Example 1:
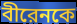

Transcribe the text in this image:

বীরেনকে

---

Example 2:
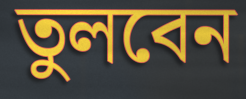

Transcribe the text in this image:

তুলবেন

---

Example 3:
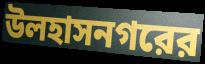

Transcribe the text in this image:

উলহাসনগরের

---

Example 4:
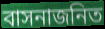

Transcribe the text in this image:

বাসনাজনিত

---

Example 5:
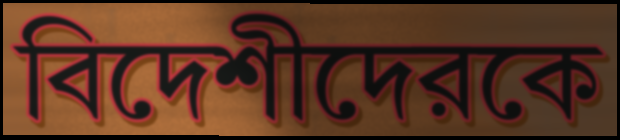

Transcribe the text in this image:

বিদেশীদেরকে